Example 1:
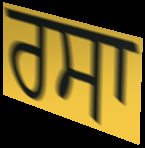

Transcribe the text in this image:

ਰਸਾ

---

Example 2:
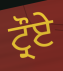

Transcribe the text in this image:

ਟ੍ਰੌਏ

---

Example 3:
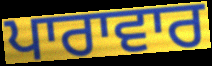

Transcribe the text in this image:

ਪਾਰਾਵਾਰ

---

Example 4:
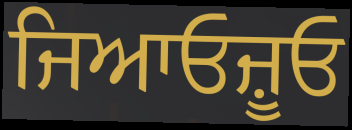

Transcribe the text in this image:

ਜਿਆਓਜ਼ੂਓ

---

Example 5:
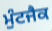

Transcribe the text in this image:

ਮੁੰਟਜੈਕ